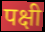
पक्षी